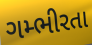
ગમ્ભીરતા